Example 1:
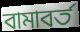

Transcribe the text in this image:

বামাবর্ত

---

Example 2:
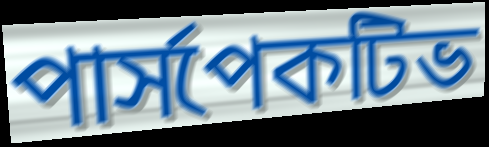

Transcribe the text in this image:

পার্সপেকটিভ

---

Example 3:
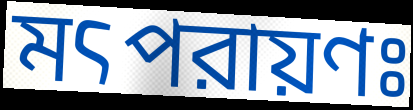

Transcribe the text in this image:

মৎপরায়ণঃ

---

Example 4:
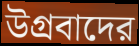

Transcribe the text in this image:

উগ্রবাদের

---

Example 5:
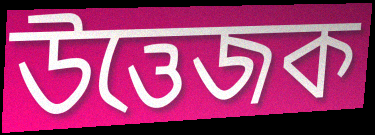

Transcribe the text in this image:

উত্তেজক